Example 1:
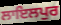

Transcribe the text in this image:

ਲਾਇਲਪੁਰ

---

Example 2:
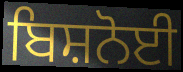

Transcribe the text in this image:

ਬਿਸ਼ਨੋਈ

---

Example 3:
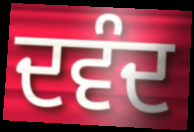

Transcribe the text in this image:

ਦਵੰਦ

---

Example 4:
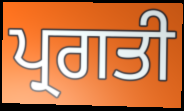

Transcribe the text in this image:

ਪ੍ਰਗਤੀ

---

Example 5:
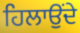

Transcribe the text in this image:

ਹਿਲਾਉਂਦੇ